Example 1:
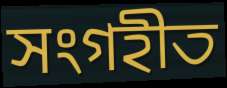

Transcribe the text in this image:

সংগহীত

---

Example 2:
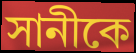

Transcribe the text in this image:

সানীকে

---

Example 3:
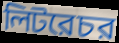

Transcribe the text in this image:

লিটরেচর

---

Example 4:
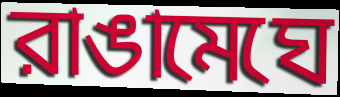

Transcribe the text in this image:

রাঙামেঘে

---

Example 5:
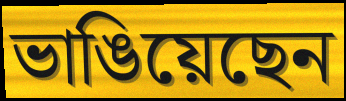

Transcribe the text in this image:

ভাঙিয়েছেন